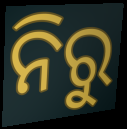
ନିରୁ